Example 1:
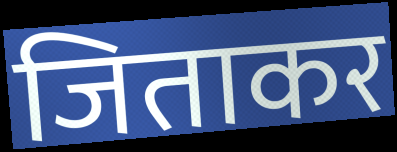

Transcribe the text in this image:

जिताकर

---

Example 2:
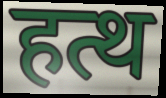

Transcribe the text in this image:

हत्थ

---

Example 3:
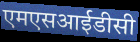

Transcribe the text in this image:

एमएसआईडीसी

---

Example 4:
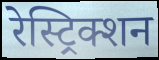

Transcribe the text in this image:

रेस्ट्रिक्शन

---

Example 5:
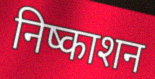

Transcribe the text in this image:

निष्काशन